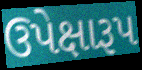
ઉપેક્ષારૂપ